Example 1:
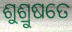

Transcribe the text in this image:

ଶୁଶ୍ରୁଷତେ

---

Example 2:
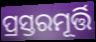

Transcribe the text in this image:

ପ୍ରସ୍ତରମୂର୍ତ୍ତି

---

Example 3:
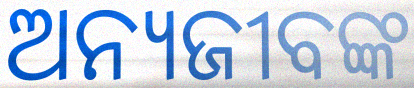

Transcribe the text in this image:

ଅନ୍ୟଜୀବଙ୍କ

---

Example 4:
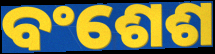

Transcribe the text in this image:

ବଂଶେଶ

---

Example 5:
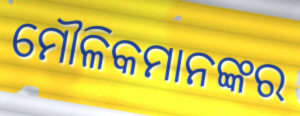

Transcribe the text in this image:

ମୌଳିକମାନଙ୍କର